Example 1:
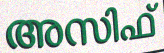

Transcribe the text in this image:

അസിഫ്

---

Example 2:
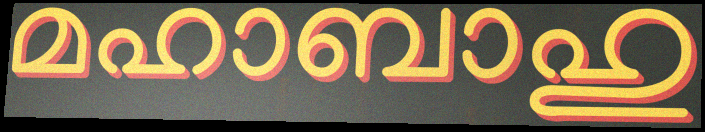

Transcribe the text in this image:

മഹാബാഹു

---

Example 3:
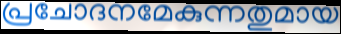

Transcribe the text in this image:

പ്രചോദനമേകുന്നതുമായ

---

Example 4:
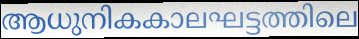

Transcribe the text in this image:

ആധുനികകാലഘട്ടത്തിലെ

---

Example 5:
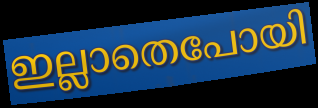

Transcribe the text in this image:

ഇല്ലാതെപോയി